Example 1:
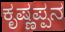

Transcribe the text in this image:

ಕೃಷ್ಣಪ್ಪನ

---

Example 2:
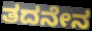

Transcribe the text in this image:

ತದನೇನ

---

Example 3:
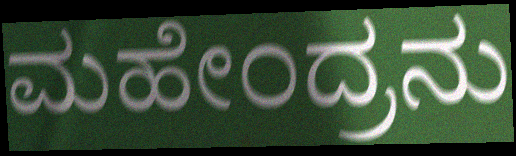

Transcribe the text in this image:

ಮಹೇಂದ್ರನು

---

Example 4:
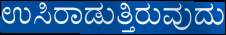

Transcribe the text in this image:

ಉಸಿರಾಡುತ್ತಿರುವುದು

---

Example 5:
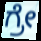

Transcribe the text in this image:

ಗ್ರೇ